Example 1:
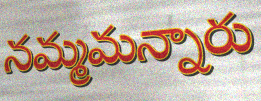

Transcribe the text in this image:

నమ్మమన్నారు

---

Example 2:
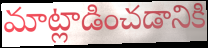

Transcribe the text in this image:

మాట్లాడించడానికి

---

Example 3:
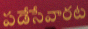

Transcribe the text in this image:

పడేసేవారట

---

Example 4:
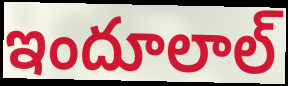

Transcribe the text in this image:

ఇందూలాల్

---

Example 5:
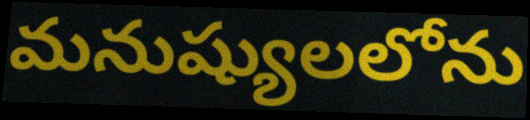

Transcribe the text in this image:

మనుష్యులలోను